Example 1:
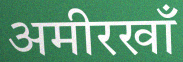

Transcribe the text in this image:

अमीरखाँ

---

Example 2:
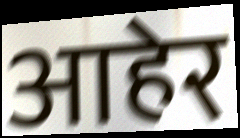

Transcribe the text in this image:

आहेर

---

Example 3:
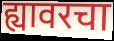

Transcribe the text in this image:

ह्यावरचा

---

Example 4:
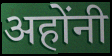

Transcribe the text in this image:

अहोंनी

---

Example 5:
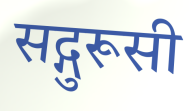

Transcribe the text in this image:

सद्गुरूसी